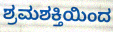
ಶ್ರಮಶಕ್ತಿಯಿಂದ